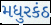
મધુરકંઠ